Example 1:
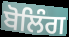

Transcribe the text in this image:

ਬੋਲਿੰਗ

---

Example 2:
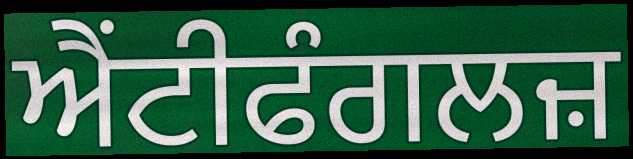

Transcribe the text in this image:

ਐਂਟੀਫੰਗਲਜ਼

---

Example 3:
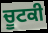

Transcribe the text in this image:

ਚੂਟਕੀ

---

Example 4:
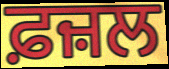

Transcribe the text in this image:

ਫ਼ਜ਼ਲ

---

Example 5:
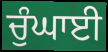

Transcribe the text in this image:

ਚੁੰਘਾਈ